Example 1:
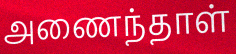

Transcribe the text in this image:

அணைந்தாள்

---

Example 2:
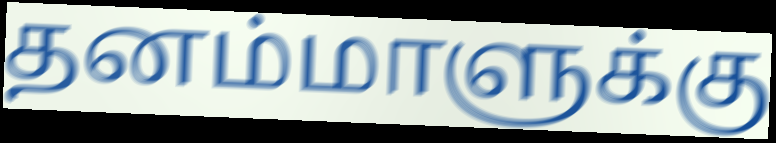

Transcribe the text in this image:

தனம்மாளுக்கு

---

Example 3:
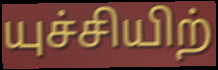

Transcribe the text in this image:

யுச்சியிற்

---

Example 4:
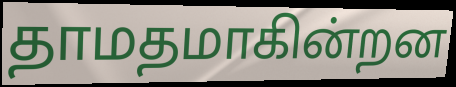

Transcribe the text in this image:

தாமதமாகின்றன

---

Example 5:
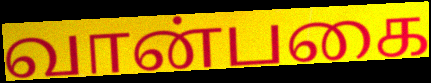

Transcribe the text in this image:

வான்பகை